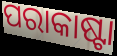
ପରାକାଷ୍ଟା